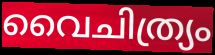
വൈചിത്ര്യം